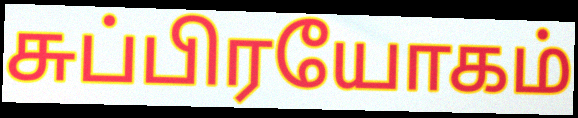
சுப்பிரயோகம்